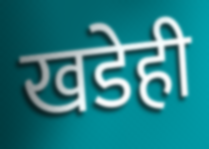
खडेही